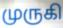
முருகி